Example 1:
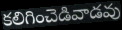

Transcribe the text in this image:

కలిగించెడివాడవు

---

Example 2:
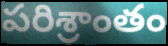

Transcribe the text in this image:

పరిశ్రాంతం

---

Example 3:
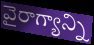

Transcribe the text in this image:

వైరాగ్యాన్ని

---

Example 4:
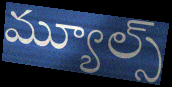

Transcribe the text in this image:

మ్యూల్స్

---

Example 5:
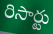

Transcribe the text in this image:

రిసార్టు